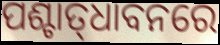
ପଶ୍ଚାତ୍‍ଧାବନରେ